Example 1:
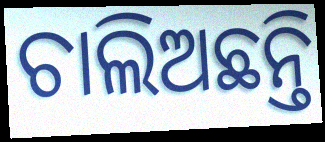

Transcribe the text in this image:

ଚାଲିଅଛନ୍ତି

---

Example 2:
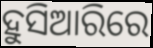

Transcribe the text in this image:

ହୁସିଆରିରେ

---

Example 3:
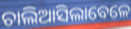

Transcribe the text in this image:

ଚାଲିଆସିଲାବେଳେ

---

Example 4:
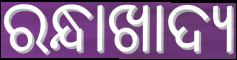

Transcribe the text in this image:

ରନ୍ଧାଖାଦ୍ୟ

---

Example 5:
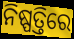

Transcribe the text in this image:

ନିଷ୍ପତ୍ତିରେ